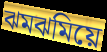
ঝমঝমিয়ে